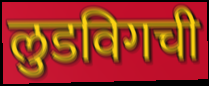
लुडविगची